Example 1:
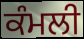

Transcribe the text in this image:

ਕੰਮਲੀ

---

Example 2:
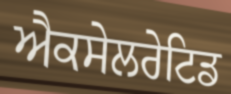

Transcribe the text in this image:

ਐਕਸੇਲਰੇਟਿਡ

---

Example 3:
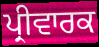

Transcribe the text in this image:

ਪ੍ਰੀਵਾਰਕ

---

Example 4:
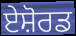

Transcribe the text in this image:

ਏਸ਼ੋਰਡ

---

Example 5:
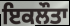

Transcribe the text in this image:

ਇਕਲੌਤਾ